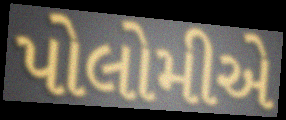
પોલોમીએ